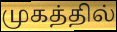
முகத்தில்